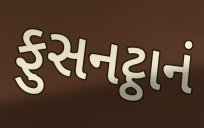
ફુસનટ્ઠાનં